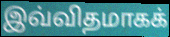
இவ்விதமாகக்